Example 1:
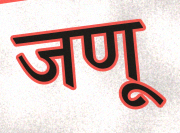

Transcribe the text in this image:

जणू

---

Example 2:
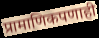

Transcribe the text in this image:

प्रामाणिकपणाही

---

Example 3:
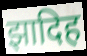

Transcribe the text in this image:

झादिह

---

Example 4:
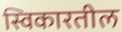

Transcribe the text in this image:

स्विकारतील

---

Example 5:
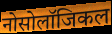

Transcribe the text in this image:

नोसोलॉजिकल